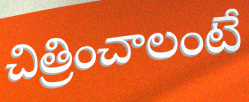
చిత్రించాలంటే